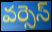
వర్సెస్